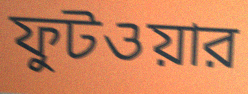
ফুটওয়ার